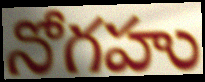
నోగహు